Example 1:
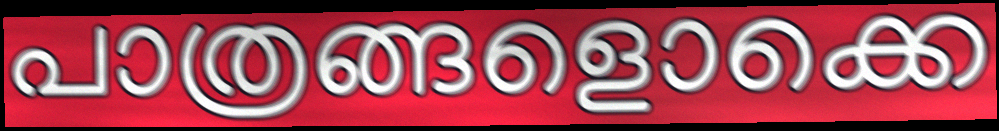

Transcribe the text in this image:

പാത്രങ്ങളൊക്കെ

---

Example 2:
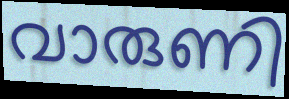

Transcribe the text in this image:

വാരുണി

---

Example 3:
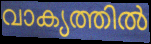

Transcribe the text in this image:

വാക്യത്തിൽ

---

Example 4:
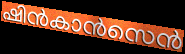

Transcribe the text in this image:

ഷിൻകാൻസെൻ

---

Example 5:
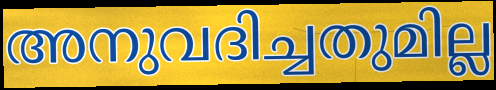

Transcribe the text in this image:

അനുവദിച്ചതുമില്ല